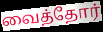
வைத்தோர்